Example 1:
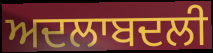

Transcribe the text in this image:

ਅਦਲਾਬਦਲੀ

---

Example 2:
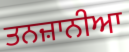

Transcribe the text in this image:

ਤਨਜ਼ਾਨੀਆ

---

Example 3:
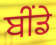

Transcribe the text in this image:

ਬੀਂਡੇ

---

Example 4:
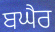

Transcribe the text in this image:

ਬਘੈਰ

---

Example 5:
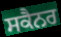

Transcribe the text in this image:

ਸਕੈਨਰ